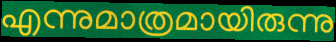
എന്നുമാത്രമായിരുന്നു